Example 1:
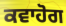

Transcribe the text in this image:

ਕਵਾਹੋਗ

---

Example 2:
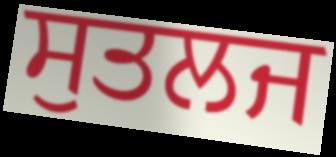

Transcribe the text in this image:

ਸੁਤਲਜ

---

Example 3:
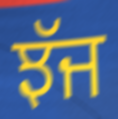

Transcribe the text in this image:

ਝੱਜ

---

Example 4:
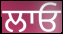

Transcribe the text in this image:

ਲਾਓ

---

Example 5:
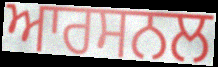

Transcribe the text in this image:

ਆਰਸਨਲ